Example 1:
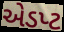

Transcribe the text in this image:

એડપ્ટ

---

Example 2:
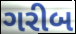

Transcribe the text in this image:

ગરીબ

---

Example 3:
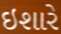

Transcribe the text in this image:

ઇશારે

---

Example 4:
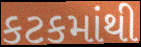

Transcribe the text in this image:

કટકમાંથી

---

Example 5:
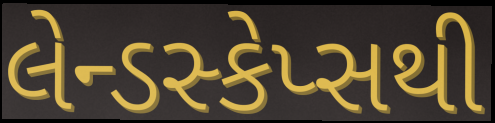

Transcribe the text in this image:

લેન્ડસ્કેપ્સથી